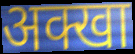
अक्खा